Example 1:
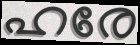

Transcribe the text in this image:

ഹരേ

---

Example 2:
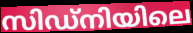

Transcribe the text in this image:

സിഡ്നിയിലെ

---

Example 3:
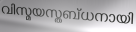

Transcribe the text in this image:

വിസ്മയസ്തബ്ധനായി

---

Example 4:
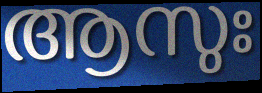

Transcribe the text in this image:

ആസുഃ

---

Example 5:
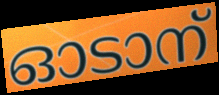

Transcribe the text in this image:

ഓടാന്